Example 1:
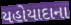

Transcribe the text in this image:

યહોયાદાના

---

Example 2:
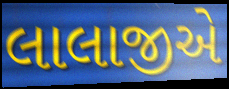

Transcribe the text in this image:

લાલાજીએ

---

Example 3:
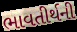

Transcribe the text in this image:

ભાવતીર્થની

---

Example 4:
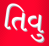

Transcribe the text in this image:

તિવુ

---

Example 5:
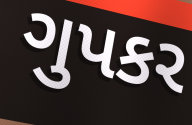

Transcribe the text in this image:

ગુપકર